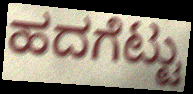
ಹದಗೆಟ್ಟು